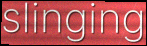
slinging